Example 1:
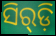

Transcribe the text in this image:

ସିର୍‌ଡ଼ି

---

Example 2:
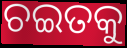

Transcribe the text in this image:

ଚଇତକୁ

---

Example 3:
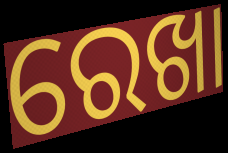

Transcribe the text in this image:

ରେଖା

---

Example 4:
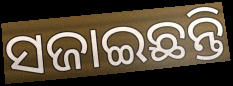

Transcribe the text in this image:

ସଜାଇଛନ୍ତି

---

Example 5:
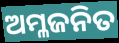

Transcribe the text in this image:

ଅମ୍ଳଜନିତ